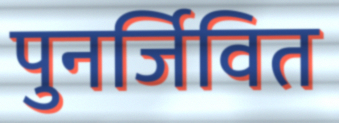
पुनर्जिवित